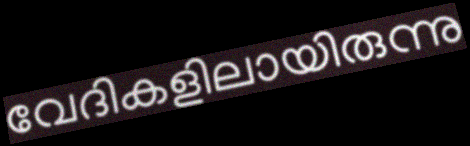
വേദികളിലായിരുന്നു